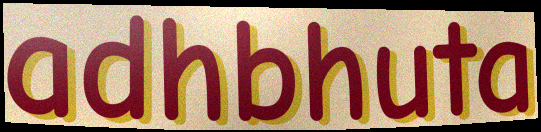
adhbhuta